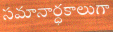
సమానార్ధకాలుగా